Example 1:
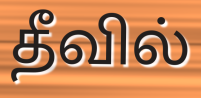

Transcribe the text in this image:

தீவில்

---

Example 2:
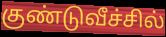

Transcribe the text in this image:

குண்டுவீச்சில்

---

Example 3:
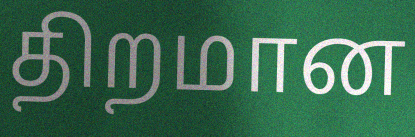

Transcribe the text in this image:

திறமான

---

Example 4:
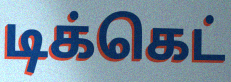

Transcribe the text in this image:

டிக்கெட்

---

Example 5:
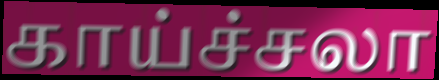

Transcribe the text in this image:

காய்ச்சலா